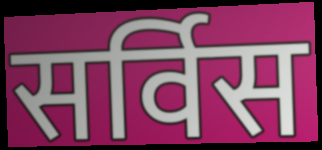
सर्विस